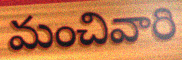
మంచివారి